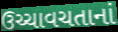
ઉચ્ચાવચતાનાં